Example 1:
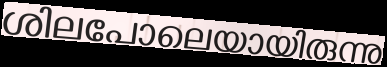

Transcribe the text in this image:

ശിലപോലെയായിരുന്നു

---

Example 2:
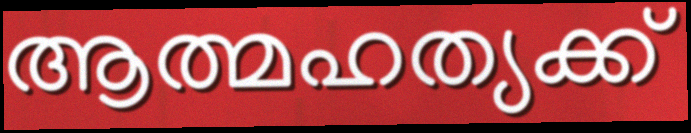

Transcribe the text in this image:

ആത്മഹത്യക്ക്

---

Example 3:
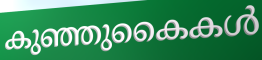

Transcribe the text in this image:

കുഞ്ഞുകൈകൾ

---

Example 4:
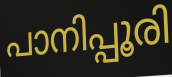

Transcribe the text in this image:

പാനിപ്പൂരി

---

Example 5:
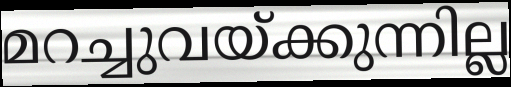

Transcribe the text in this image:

മറച്ചുവയ്ക്കുന്നില്ല